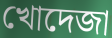
খোদেজা